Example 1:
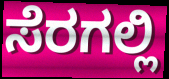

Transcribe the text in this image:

ಸೆರಗಲ್ಲಿ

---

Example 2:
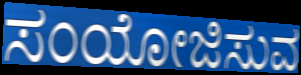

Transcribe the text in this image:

ಸಂಯೋಜಿಸುವ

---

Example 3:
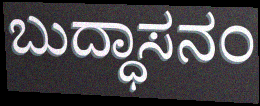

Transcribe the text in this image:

ಬುದ್ಧಾಸನಂ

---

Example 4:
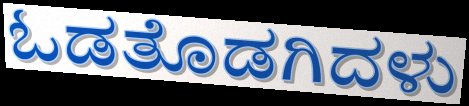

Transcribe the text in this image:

ಓಡತೊಡಗಿದಳು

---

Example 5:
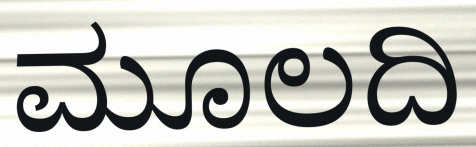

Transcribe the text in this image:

ಮೂಲದಿ